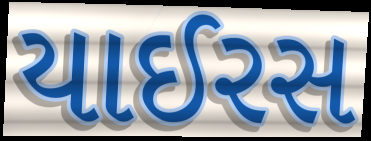
યાઈરસ